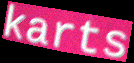
karts